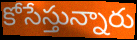
కోసేస్తున్నారు